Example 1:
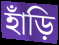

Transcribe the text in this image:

হাঁড়ি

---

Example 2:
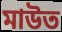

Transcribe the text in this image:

মাউত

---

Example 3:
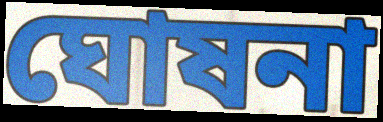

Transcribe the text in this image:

ঘোষনা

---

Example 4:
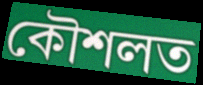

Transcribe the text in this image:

কৌশলত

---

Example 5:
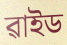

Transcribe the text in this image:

ৱাইড